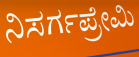
ನಿಸರ್ಗಪ್ರೇಮಿ